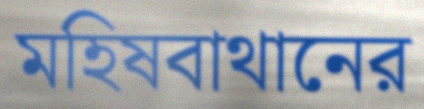
মহিষবাথানের